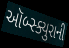
ઑબ્સ્ક્યુરાની